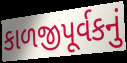
કાળજીપૂર્વકનું